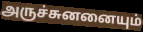
அருச்சுனனையும்